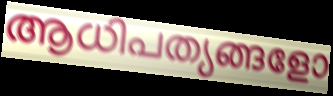
ആധിപത്യങ്ങളോ